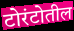
टोरंटोतील